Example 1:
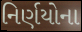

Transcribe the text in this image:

નિર્ણયોના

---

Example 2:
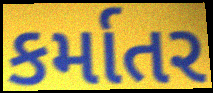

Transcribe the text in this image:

કર્માતર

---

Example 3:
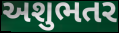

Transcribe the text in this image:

અશુભતર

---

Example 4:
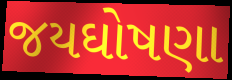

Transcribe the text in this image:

જયઘોષણા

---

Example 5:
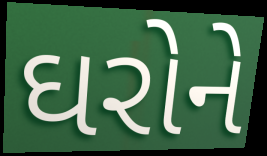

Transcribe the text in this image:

ઘરોને